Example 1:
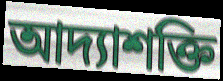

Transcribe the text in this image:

আদ্যাশক্তি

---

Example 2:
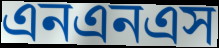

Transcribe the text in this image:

এনএনএস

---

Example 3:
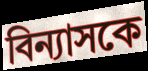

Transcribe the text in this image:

বিন্যাসকে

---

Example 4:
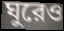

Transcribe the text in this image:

ঘুরেও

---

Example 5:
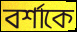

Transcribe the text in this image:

বর্শাকে